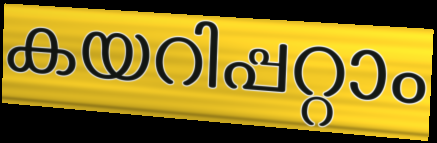
കയറിപ്പറ്റാം